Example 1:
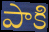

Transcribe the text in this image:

పాకి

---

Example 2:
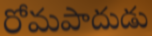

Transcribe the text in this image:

రోమపాదుడు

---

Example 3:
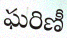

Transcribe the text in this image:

ఘరిణీ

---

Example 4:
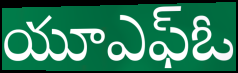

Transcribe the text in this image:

యూఎఫ్ఓ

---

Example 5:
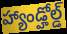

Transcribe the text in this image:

హ్యాండ్హోల్డ్